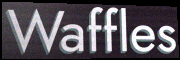
Waffles